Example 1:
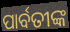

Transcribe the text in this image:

ପାର୍ବତୀଙ୍କ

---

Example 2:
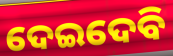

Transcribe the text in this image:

ଦେଇଦେବି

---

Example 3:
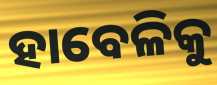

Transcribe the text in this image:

ହାବେଳିକୁ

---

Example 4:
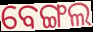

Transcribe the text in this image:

ବେଙ୍ଗଲ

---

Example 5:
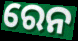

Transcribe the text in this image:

ରେନ